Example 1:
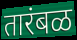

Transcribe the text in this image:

तारंबळ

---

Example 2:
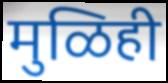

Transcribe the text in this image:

मुळिही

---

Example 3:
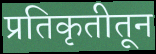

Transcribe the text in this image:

प्रतिकृतीतून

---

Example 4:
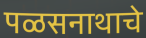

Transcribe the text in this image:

पळसनाथाचे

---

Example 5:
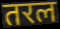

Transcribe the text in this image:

तरल